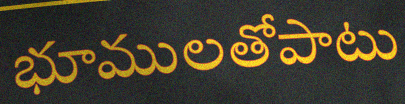
భూములతోపాటు